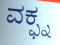
ವಕ್ಫ್ನ